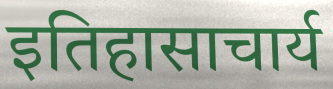
इतिहासाचार्य